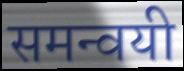
समन्वयी